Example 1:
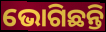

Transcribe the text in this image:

ଭୋଗିଛନ୍ତି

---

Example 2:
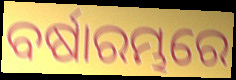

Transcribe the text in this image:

ବର୍ଷାରମ୍ଭରେ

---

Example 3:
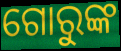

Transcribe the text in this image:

ଗୋରୁଙ୍କ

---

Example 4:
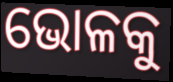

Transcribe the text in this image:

ଭୋଳକୁ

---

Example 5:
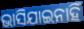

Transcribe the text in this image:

ଭାସିଯାଇନାହିଁ